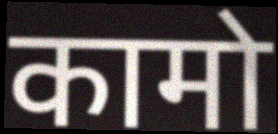
कामो